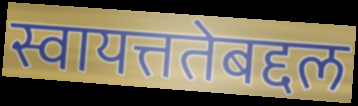
स्वायत्ततेबद्दल